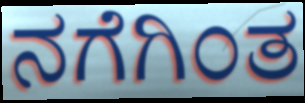
ನಗೆಗಿಂತ